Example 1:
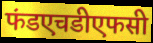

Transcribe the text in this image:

फंडएचडीएफसी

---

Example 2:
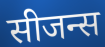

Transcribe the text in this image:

सीजन्स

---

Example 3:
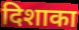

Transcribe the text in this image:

दिशाका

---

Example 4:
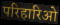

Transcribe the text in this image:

परिहारिओ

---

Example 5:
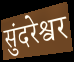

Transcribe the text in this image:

सुंदरेश्वर